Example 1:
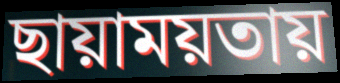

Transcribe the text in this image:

ছায়াময়তায়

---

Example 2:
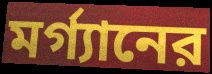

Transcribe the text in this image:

মর্গ্যানের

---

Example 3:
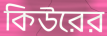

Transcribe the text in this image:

কিউরের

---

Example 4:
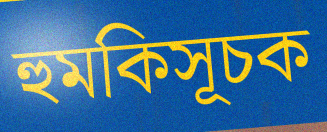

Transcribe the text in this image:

হুমকিসূচক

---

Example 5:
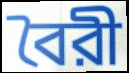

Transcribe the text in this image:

বৈরী